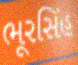
ભૂરસિંહ